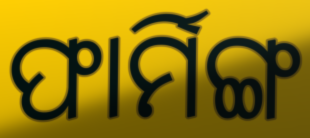
ଫାର୍ମିଙ୍ଗ